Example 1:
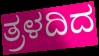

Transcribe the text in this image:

ತ್ರಳದಿದ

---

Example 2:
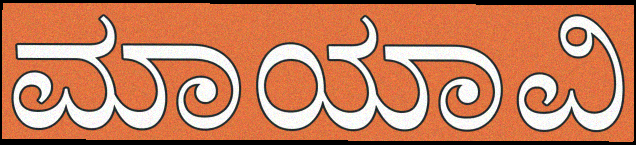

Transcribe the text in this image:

ಮಾಯಾವಿ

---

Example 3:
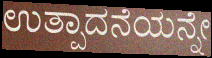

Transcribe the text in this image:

ಉತ್ಪಾದನೆಯನ್ನೇ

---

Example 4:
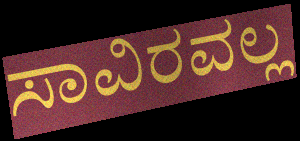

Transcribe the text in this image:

ಸಾವಿರವಲ್ಲ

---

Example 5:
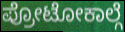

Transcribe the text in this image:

ಪ್ರೋಟೋಕಾಲ್ಗೆ